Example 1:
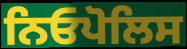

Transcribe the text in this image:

ਨਿਓਪੋਲਿਸ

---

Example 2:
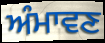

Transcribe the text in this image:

ਅੰਮਾਵਣ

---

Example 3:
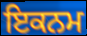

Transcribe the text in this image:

ਇਕਨਮ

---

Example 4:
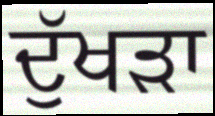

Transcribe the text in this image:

ਦੁੱਖਡ਼ਾ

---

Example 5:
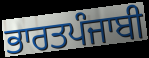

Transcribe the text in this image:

ਭਾਰਤਪੰਜਾਬੀ